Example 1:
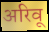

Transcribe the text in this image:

अरिवू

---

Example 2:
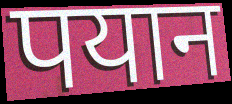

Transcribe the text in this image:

पयान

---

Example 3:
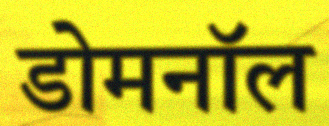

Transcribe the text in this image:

डोमनॉल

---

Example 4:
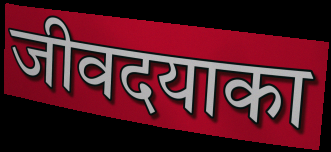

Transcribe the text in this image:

जीवदयाका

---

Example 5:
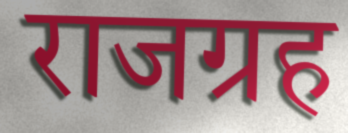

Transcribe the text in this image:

राजग्रह